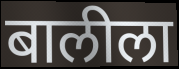
बालीला